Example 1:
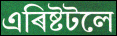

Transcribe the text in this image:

এৰিষ্টটলে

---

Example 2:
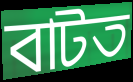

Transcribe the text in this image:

বাটত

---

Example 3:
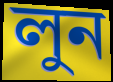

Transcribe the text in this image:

লুন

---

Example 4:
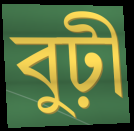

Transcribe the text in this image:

বুঢ়ী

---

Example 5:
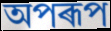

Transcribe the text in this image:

অপৰূপ